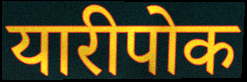
यारीपोक